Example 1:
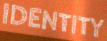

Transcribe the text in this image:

IDENTITY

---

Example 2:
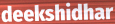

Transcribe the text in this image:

deekshidhar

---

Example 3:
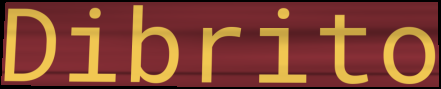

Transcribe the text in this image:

Dibrito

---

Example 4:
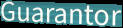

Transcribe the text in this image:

Guarantor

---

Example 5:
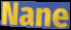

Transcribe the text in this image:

Nane